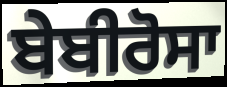
ਬੇਬੀਰੋਸਾ